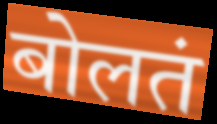
बोलतं